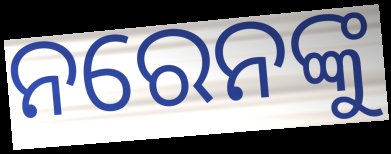
ନରେନଙ୍କୁ